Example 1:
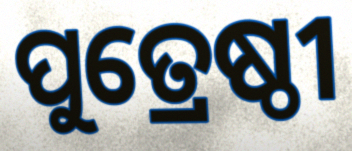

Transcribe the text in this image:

ପୁତ୍ରେଷ୍ଠୀ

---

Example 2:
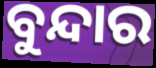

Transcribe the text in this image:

ବୁନ୍ଦାର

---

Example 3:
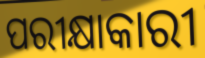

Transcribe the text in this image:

ପରୀକ୍ଷାକାରୀ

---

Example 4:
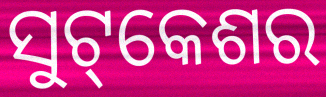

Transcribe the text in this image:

ସୁଟ୍‌କେଶର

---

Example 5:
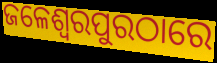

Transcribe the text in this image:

ଜଳେଶ୍ୱରପୁରଠାରେ